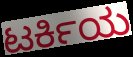
ಟರ್ಕಿಯ